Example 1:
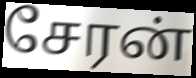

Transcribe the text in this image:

சேரன்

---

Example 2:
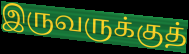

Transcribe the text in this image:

இருவருக்குத்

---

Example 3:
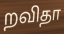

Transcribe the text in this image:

றவிதா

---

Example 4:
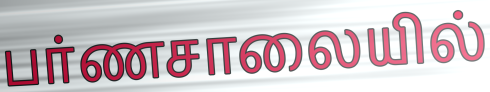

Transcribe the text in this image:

பர்ணசாலையில்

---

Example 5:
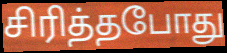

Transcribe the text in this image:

சிரித்தபோது